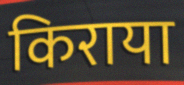
किराया